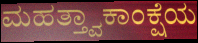
ಮಹತ್ತ್ವಾಕಾಂಕ್ಷೆಯ